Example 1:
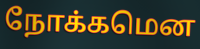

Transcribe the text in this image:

நோக்கமென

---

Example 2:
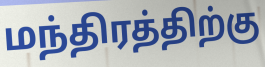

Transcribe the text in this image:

மந்திரத்திற்கு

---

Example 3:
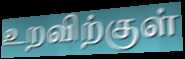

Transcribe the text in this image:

உறவிற்குள்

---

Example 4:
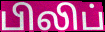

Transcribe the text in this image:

பிலிப்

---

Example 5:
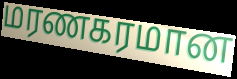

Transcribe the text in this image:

மரணகரமான